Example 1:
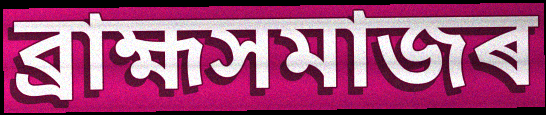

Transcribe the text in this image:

ব্ৰাহ্মসমাজৰ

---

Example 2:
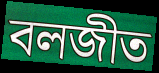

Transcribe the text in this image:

বলজীত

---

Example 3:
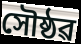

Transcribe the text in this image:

সৌষ্ঠৱ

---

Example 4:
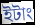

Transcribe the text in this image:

ইটাং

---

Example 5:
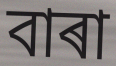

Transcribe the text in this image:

বাৰা